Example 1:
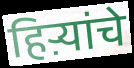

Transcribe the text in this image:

हिऱ्‍यांचे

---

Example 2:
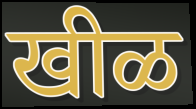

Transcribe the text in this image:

खीळ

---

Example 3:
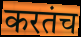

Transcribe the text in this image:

करतंच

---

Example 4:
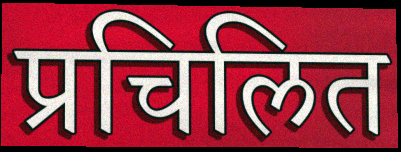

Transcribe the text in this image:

प्रचिलित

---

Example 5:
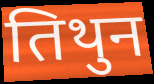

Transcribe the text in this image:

तिथुन